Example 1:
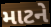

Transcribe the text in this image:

માટને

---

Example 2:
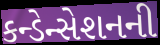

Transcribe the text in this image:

કન્ડેન્સેશનની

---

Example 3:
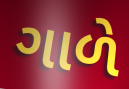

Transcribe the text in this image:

ગાળે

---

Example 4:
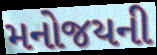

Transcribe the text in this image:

મનોજયની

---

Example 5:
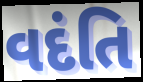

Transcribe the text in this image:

વદંતિ